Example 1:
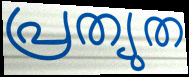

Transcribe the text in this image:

പ്രത്യുത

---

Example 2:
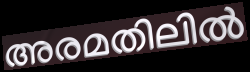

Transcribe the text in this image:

അരമതിലിൽ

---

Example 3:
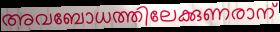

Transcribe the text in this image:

അവബോധത്തിലേക്കുണരാന്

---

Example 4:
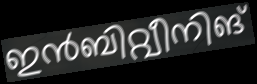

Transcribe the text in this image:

ഇൻബിറ്റ്വീനിങ്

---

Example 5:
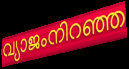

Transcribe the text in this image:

വ്യാജംനിറഞ്ഞ